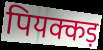
पियक्कड़